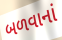
બળવાનાં